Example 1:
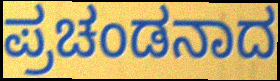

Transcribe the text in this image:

ಪ್ರಚಂಡನಾದ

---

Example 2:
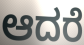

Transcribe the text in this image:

ಆದರೆ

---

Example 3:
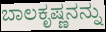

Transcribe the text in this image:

ಬಾಲಕೃಷ್ಣನನ್ನು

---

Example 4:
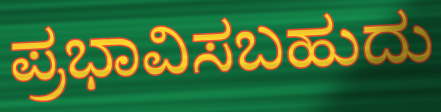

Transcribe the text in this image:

ಪ್ರಭಾವಿಸಬಹುದು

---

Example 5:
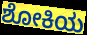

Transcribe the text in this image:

ಶೋಕಿಯ